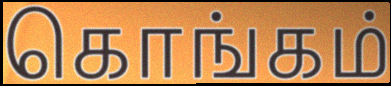
கொங்கம்